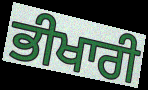
ਭੀਖਾਰੀ